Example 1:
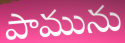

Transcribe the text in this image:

పామును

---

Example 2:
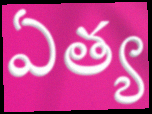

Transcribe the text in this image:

ఏత్య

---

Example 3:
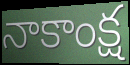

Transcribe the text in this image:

నాకాంక్ష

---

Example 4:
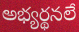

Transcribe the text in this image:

అభ్యర్థనలే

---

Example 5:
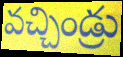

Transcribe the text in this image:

వచ్చిండ్రు